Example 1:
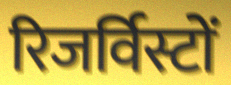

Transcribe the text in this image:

रिजर्विस्टों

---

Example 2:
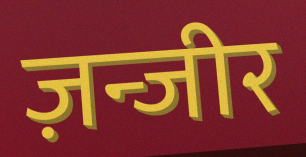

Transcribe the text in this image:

ज़न्जीर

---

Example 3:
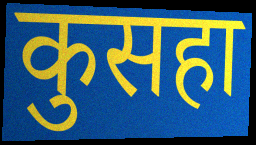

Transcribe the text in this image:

कुसहा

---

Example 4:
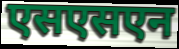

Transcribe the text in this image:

एसएसएन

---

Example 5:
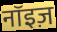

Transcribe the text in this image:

नॉइज़